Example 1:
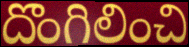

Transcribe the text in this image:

దొంగిలించి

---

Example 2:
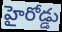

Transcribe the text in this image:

హైరోడ్డు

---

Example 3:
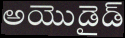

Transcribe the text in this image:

అయొడైడ్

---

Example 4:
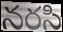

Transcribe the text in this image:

నరసి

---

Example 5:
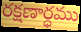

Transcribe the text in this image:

రక్షణార్ధము